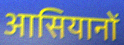
आसियानों